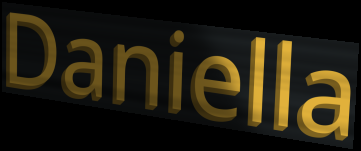
Daniella